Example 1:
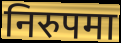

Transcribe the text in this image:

निरुपमा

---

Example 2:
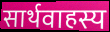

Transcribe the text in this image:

सार्थवाहस्य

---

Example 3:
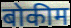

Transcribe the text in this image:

बोकीम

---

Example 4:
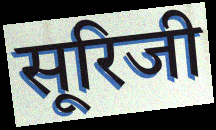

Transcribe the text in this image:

सूरिजी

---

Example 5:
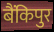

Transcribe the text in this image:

बैंकिपुर